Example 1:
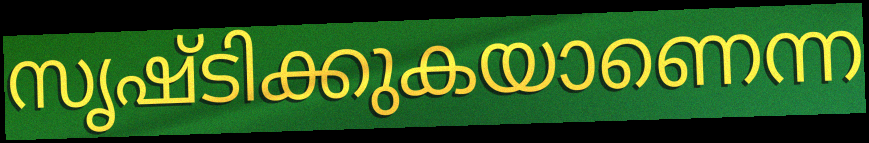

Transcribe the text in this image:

സൃഷ്ടിക്കുകയാണെന്ന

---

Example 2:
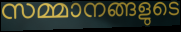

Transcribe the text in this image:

സമ്മാനങ്ങളുടെ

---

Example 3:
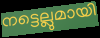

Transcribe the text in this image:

നട്ടെല്ലുമായി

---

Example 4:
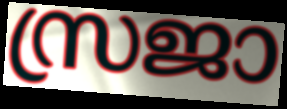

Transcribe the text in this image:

സ്രജാ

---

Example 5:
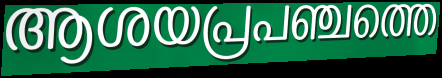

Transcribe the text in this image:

ആശയപ്രപഞ്ചത്തെ